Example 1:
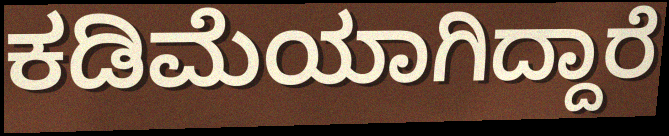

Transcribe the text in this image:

ಕಡಿಮೆಯಾಗಿದ್ದಾರೆ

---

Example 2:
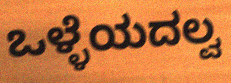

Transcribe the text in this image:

ಒಳ್ಳೆಯದಲ್ವ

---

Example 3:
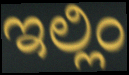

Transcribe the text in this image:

ಇಲ್ಲಿಂ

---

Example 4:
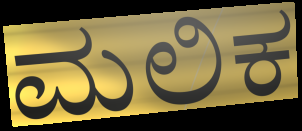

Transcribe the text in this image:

ಮಲಿಕ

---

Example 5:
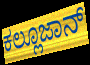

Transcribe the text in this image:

ಕಲ್ಲೂಜಾನ್